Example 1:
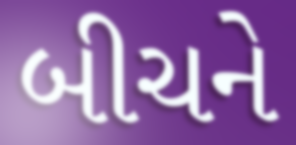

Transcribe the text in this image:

બીચને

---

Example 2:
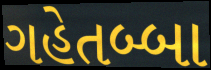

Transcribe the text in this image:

ગહેતબ્બા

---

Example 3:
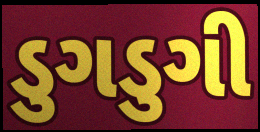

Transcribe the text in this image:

ડુગડુગી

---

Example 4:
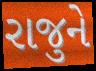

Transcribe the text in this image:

રાજુને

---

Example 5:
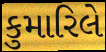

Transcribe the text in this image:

કુમારિલે